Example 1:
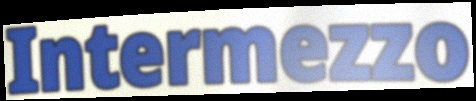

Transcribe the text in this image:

Intermezzo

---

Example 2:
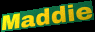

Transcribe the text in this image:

Maddie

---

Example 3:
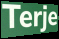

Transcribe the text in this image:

Terje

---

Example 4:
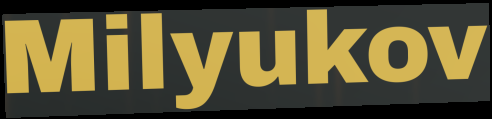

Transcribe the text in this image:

Milyukov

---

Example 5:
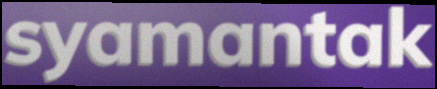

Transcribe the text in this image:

syamantak